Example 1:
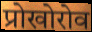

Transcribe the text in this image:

प्रोखोरोव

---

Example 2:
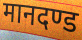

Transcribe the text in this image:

मानदण्ड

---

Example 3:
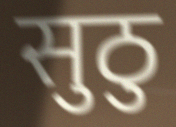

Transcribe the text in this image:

सुठु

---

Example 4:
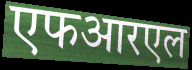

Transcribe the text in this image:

एफआरएल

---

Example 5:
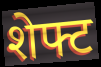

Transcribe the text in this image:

शेफ्ट